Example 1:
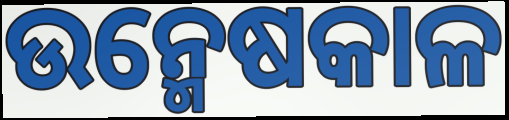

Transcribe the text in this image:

ଉନ୍ମେଷକାଳ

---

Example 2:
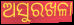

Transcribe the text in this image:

ଅସୁରଖଳା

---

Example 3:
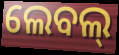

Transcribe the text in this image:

ଲେବଲ୍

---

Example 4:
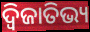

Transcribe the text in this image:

ଦ୍ବିଜାତିଭ୍ୟ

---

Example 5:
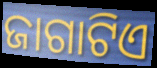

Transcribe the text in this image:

ଜାଗାଟିଏ